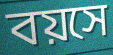
বয়সে